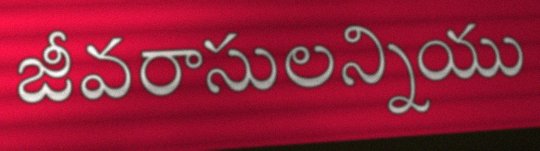
జీవరాసులన్నియు